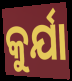
କୁର୍ଯା